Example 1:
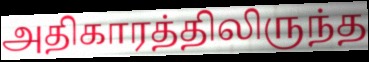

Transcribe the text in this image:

அதிகாரத்திலிருந்த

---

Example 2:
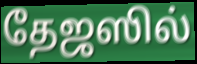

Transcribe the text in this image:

தேஜஸில்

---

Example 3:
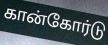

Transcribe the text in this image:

கான்கோர்டு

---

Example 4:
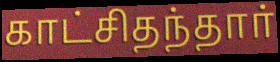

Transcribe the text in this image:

காட்சிதந்தார்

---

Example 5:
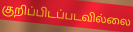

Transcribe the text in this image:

குறிப்பிடப்படவில்லை